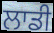
ਲਾਡੀ